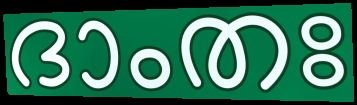
ദാംതഃ